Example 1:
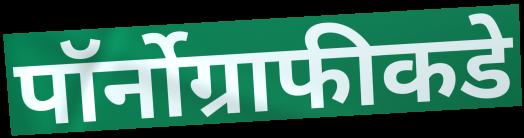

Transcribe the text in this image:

पॉर्नोग्राफीकडे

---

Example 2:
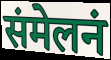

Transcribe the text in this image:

संमेलनं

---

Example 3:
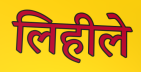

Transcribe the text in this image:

लिहीले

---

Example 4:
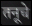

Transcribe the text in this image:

तनूचे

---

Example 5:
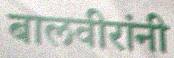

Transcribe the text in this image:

बालवीरांनी